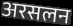
अरसलन